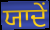
ਯਾਦੇਂ